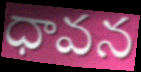
ధావన